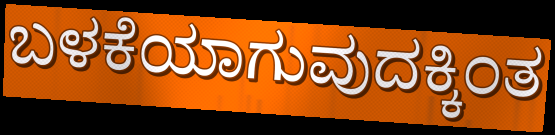
ಬಳಕೆಯಾಗುವುದಕ್ಕಿಂತ